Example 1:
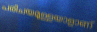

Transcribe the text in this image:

പരിചയമുള്ളയാളാണ്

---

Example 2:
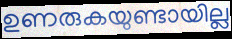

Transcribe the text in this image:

ഉണരുകയുണ്ടായില്ല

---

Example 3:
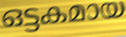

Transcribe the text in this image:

ഒട്ടകമായ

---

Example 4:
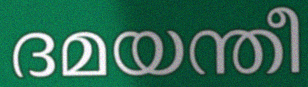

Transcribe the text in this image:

ദമയന്തീ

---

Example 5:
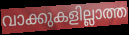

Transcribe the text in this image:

വാക്കുകളില്ലാത്ത